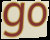
go